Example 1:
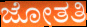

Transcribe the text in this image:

ಜೋತತಿ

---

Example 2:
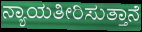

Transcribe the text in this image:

ನ್ಯಾಯತೀರಿಸುತ್ತಾನೆ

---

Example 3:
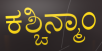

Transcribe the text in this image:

ಕಶ್ಚಿನ್ಮಾಂ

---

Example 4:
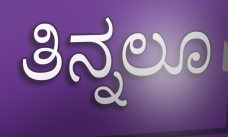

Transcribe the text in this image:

ತಿನ್ನಲೂ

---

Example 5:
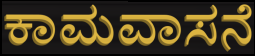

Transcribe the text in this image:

ಕಾಮವಾಸನೆ